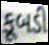
કૂબડી